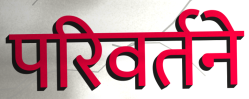
परिवर्तने